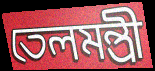
তেলমন্ত্রী